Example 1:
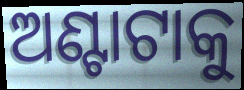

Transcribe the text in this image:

ଅଣ୍ଟାଟାକୁ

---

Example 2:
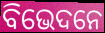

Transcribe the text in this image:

ବିଭେଦନେ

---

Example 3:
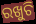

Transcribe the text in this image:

ରଖୁଚି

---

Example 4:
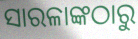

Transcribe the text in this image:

ସାରଳାଙ୍କଠାରୁ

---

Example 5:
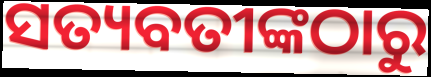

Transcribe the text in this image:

ସତ୍ୟବତୀଙ୍କଠାରୁ